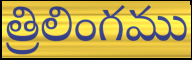
త్రిలింగము